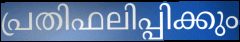
പ്രതിഫലിപ്പിക്കും